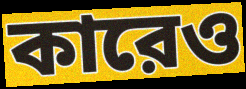
কারেও